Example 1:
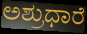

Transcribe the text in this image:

ಅಶ್ರುಧಾರೆ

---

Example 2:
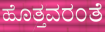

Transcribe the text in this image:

ಹೊತ್ತವರಂತೆ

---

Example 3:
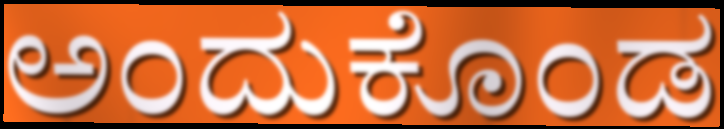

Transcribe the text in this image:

ಅಂದುಕೊಂಡ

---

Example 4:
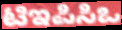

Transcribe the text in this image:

ಟಿಇಪಿಸಿಒ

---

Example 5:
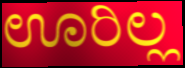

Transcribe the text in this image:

ಊರಿಲ್ಲ